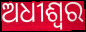
ଅଧୀଶ୍ୱର